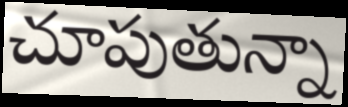
చూపుతున్నా